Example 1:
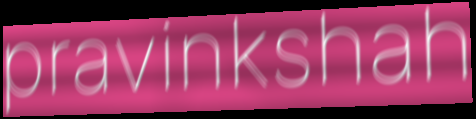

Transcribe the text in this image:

pravinkshah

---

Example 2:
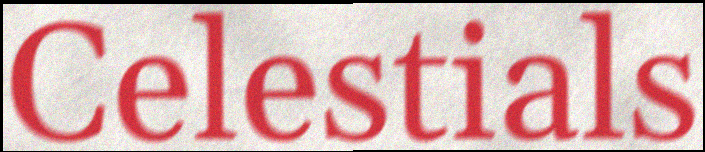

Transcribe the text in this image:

Celestials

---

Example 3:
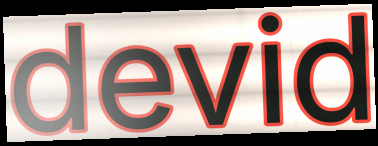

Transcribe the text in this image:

devid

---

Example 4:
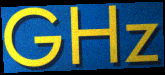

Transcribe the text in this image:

GHz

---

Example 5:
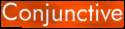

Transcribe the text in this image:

Conjunctive